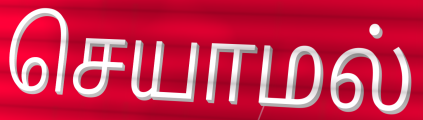
செயாமல்